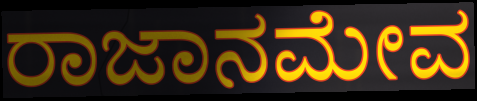
ರಾಜಾನಮೇವ